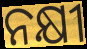
ନକ୍ଷୀ